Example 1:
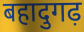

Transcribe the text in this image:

बहादुगढ़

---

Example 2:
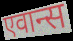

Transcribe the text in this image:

एवान्स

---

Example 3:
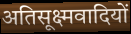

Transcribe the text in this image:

अतिसूक्ष्मवादियों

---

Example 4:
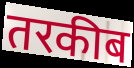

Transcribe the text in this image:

तरकीब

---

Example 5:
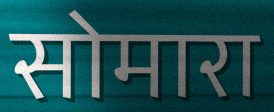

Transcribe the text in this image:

सोमारा